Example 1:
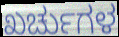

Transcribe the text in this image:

ಖರ್ಚುಗಳ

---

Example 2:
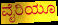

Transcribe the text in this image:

ವೈರಿಯೂ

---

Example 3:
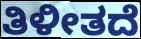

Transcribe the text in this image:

ತಿಳೀತದೆ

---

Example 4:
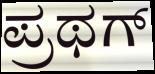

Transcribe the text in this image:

ಪ್ರಥಗ್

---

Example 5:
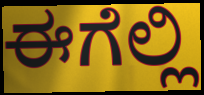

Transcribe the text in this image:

ಈಗೆಲ್ಲಿ